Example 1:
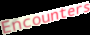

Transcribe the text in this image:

Encounters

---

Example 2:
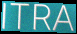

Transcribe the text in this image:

ITRA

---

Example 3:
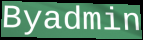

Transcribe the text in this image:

Byadmin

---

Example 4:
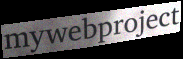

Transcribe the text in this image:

mywebproject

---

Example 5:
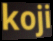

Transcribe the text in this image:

koji